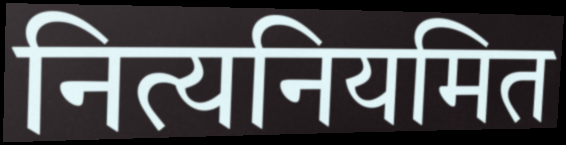
नित्यनियमित